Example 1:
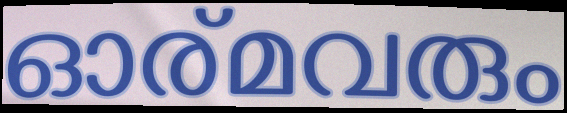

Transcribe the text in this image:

ഓര്മവരും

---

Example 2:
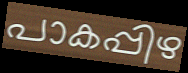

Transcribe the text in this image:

പാകപ്പിഴ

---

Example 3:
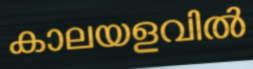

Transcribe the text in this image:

കാലയളവിൽ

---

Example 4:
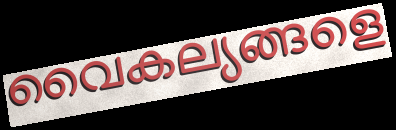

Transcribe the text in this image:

വൈകല്യങ്ങളെ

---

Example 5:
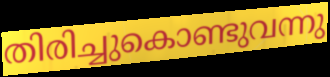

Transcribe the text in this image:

തിരിച്ചുകൊണ്ടുവന്നു